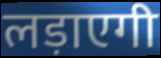
लड़ाएगी